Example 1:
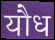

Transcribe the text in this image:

यौध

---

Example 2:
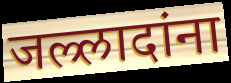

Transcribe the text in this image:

जल्लादांना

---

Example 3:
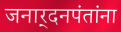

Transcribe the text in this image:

जनार्दनपंतांना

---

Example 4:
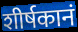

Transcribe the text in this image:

शीर्षकानं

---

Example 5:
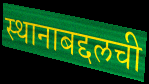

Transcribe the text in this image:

स्थानाबद्दलची